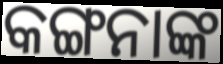
କଙ୍ଗନାଙ୍କ